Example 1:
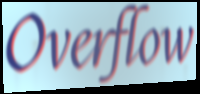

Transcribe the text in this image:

Overflow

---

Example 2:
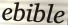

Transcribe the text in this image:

ebible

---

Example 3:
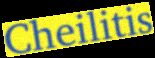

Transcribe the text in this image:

Cheilitis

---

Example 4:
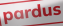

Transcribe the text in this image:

pardus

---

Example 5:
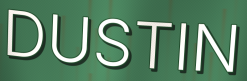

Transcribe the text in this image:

DUSTIN